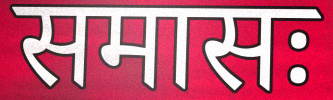
समासः